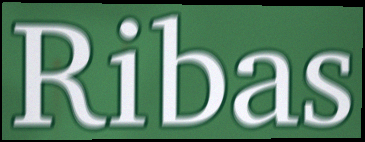
Ribas